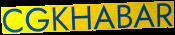
CGKHABAR